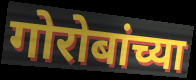
गोरोबांच्या